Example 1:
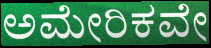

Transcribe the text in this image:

ಅಮೇರಿಕವೇ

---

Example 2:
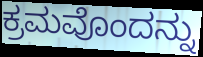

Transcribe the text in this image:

ಕ್ರಮವೊಂದನ್ನು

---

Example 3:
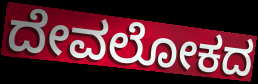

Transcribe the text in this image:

ದೇವಲೋಕದ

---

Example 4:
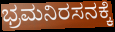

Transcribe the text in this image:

ಭ್ರಮನಿರಸನಕ್ಕೆ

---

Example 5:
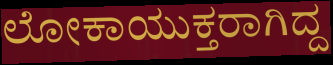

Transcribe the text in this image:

ಲೋಕಾಯುಕ್ತರಾಗಿದ್ದ